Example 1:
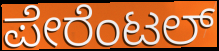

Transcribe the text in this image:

ಪೇರೆಂಟಲ್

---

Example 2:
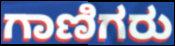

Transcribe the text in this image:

ಗಾಣಿಗರು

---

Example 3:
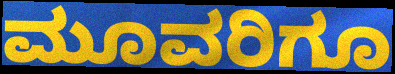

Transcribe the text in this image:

ಮೂವರಿಗೂ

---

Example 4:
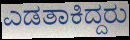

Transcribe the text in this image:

ಎಡತಾಕಿದ್ದರು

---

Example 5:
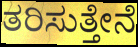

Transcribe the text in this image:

ತರಿಸುತ್ತೇನೆ